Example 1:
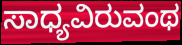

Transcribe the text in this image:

ಸಾಧ್ಯವಿರುವಂಥ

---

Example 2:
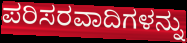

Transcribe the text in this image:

ಪರಿಸರವಾದಿಗಳನ್ನು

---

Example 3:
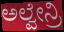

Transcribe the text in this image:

ಅಲ್ವೇನ್ರಿ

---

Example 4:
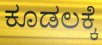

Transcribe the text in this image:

ಕೂಡಲಕ್ಕೆ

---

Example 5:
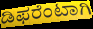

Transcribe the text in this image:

ಡಿಫರೆಂಟಾಗಿ